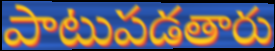
పాటుపడతారు